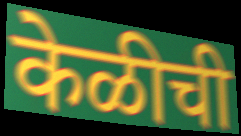
केळीची